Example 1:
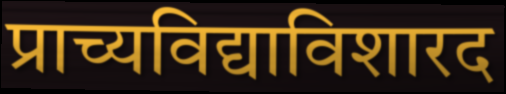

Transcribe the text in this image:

प्राच्यविद्याविशारद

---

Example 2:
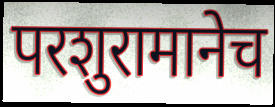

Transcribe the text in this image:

परशुरामानेच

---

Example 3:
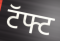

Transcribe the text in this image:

टॅफ्ट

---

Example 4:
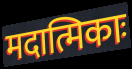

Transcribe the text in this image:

मदात्मिकाः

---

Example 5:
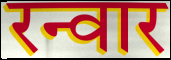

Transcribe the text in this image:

रन्वार